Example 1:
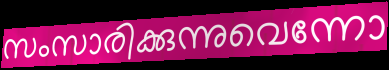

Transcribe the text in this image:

സംസാരിക്കുന്നുവെന്നോ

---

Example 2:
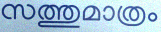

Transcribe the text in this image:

സത്തുമാത്രം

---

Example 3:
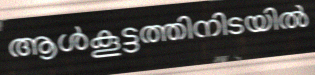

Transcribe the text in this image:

ആൾകൂട്ടത്തിനിടയിൽ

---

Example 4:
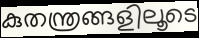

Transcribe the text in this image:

കുതന്ത്രങ്ങളിലൂടെ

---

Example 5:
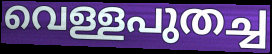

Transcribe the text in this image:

വെള്ളപുതച്ച